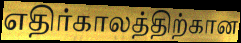
எதிர்காலத்திற்கான